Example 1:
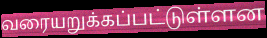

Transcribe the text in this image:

வரையறுக்கப்பட்டுள்ளன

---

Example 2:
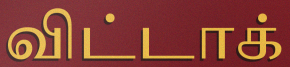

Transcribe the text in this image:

விட்டாக்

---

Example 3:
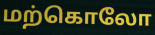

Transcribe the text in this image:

மற்கொலோ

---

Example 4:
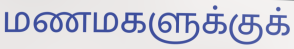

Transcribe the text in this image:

மணமகளுக்குக்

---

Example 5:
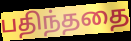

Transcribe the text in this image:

பதிந்ததை